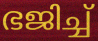
ഭജിച്ച്